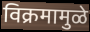
विक्रमामुळे